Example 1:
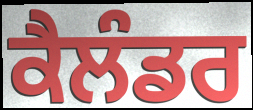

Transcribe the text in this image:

ਕੈਲੰਡਰ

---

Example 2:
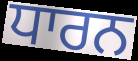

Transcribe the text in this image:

ਧਾਰਨ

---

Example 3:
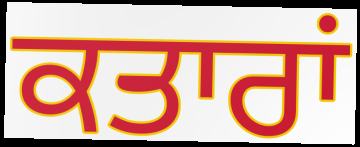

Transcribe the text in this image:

ਕਤਾਰਾਂ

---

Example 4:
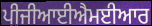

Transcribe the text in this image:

ਪੀਜੀਆਈਐਮਈਆਰ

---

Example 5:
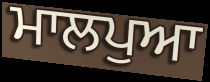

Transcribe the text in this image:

ਮਾਲਪੁਆ